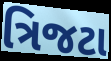
ત્રિજટા